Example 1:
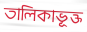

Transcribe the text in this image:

তালিকাভূক্ত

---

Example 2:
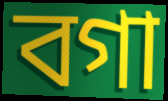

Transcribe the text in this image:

বগা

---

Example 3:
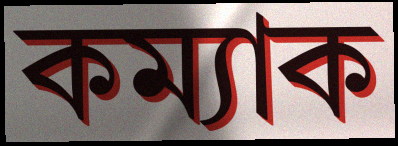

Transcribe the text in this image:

কম্যাক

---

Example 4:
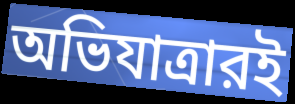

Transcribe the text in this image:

অভিযাত্রারই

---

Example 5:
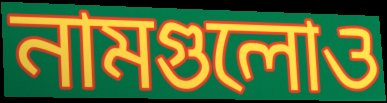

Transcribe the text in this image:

নামগুলোও